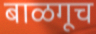
बाळगूच